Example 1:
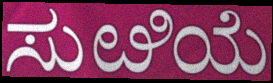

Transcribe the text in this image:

ಸುೞಿಯೆ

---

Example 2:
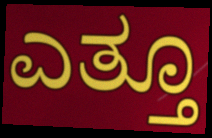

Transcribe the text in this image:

ಎತ್ತೂ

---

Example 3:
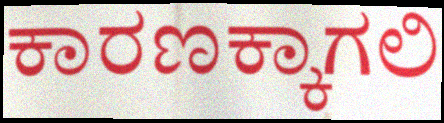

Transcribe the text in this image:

ಕಾರಣಕ್ಕಾಗಲಿ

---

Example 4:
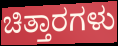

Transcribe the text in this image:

ಚಿತ್ತಾರಗಳು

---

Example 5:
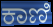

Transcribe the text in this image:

ಕಾಣಿ